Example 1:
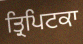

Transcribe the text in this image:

ਤ੍ਰਿਪਿਟਕਾ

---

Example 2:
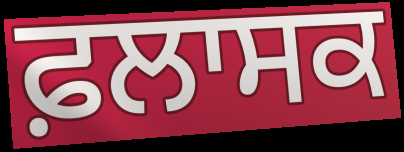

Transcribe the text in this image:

ਫ਼ਲਾਸਕ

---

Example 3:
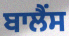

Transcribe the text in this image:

ਬਾਲੈਂਸ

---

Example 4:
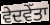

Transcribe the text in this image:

ਵੇਦਵੇੱਤਾ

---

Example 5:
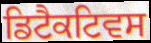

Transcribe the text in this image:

ਡਿਟੈਕਟਿਵਸ